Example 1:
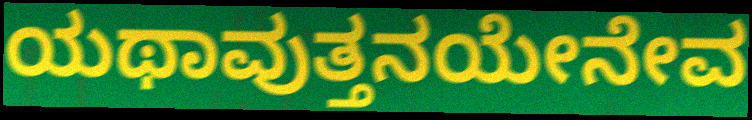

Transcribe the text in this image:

ಯಥಾವುತ್ತನಯೇನೇವ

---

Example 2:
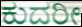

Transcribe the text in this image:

ಕುದರೀ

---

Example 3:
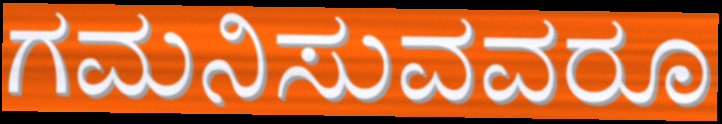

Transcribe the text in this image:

ಗಮನಿಸುವವರೂ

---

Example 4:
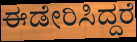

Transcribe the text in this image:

ಈಡೇರಿಸಿದ್ದರೆ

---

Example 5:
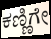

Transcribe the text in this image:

ಕಣ್ಣಿಗೇ